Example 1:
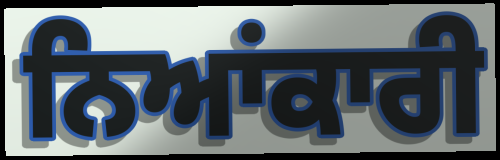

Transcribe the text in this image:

ਨਿਆਂਕਾਰੀ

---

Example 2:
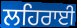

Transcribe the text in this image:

ਲਹਿਰਾਈ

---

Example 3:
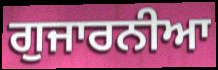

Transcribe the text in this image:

ਗੁਜਾਰਨੀਆ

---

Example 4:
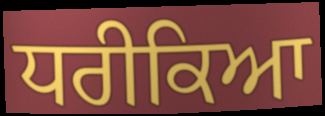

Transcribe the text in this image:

ਧਰੀਕਿਆ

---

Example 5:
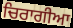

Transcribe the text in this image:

ਚਿਰਾਗੀਆ